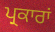
ਪ੍ਰਕਾਰਾਂ